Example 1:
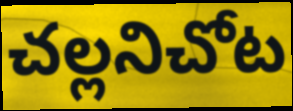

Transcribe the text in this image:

చల్లనిచోట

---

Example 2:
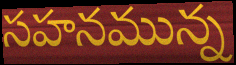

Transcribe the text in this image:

సహనమున్న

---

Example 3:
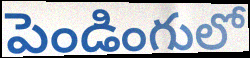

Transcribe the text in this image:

పెండింగులో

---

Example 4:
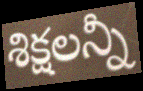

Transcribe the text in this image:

శిక్షలన్నీ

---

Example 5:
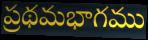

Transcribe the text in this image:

ప్రథమభాగము